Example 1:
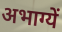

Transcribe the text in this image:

अभाग्यें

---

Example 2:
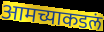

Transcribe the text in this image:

आमच्याकडलं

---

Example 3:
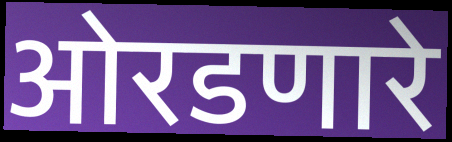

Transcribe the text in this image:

ओरडणारे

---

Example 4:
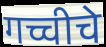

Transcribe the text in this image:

गच्चीचे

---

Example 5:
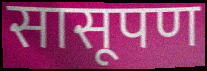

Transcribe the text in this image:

सासूपण